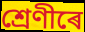
শ্ৰেণীৰে